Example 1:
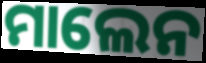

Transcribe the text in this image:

ମାଲେନ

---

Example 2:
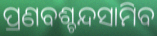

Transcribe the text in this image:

ପ୍ରଣବଶ୍ଚନ୍ଦସାମିବ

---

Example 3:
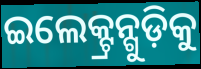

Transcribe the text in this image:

ଇଲେକ୍ଟ୍ରନ୍ଗୁଡ଼ିକୁ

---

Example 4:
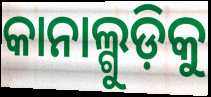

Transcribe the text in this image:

କାନାଲ୍ଗୁଡ଼ିକୁ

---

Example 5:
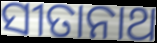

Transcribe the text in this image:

ସୀତାନାଥ